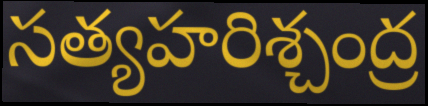
సత్యహరిశ్చంద్ర